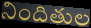
నిందితుల